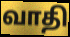
வாதி